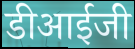
डीआईजी